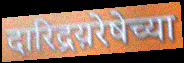
दारिद्रय़रेषेच्या